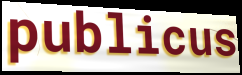
publicus